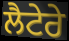
ਲੈਟੇਰੇ